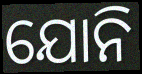
ଯୋନି